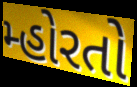
મ્હોરતો